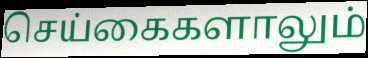
செய்கைகளாலும்